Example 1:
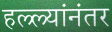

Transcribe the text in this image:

हल्ल्यांनंतर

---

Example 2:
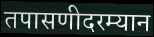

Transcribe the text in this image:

तपासणीदरम्यान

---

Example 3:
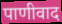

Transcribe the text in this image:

पाणीवाद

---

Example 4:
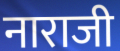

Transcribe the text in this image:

नाराजी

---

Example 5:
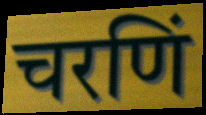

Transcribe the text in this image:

चरणिं